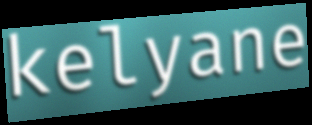
kelyane